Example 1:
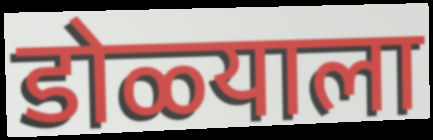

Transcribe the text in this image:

डोळ्याला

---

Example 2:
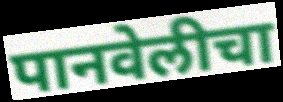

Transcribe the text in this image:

पानवेलीचा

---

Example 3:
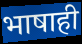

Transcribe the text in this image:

भाषाही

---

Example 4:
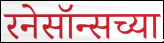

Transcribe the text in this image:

रनेसॉन्सच्या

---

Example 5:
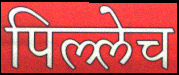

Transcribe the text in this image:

पिल्लेच